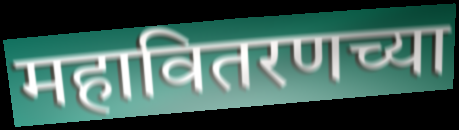
महावितरणच्या